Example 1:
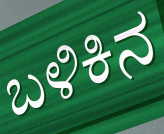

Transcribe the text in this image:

ಬಳಿಕಿನ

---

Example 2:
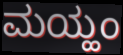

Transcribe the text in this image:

ಮಯ್ಹಂ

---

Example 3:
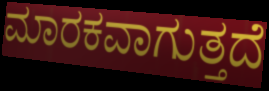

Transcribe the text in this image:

ಮಾರಕವಾಗುತ್ತದೆ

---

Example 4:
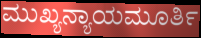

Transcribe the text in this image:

ಮುಖ್ಯನ್ಯಾಯಮೂರ್ತಿ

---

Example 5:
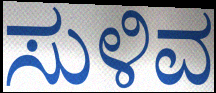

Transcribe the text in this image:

ಸುಳಿವ